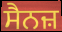
ਸੈਨਜ਼